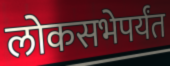
लोकसभेपर्यंत